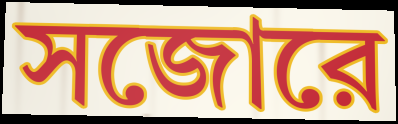
সজোরে